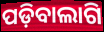
ପଡ଼ିବାଲାଗି